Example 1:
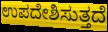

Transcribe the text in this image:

ಉಪದೇಶಿಸುತ್ತದೆ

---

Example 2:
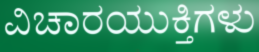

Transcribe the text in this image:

ವಿಚಾರಯುಕ್ತಿಗಳು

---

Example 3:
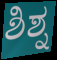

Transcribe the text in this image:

ಶಿಶ್ನ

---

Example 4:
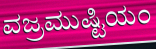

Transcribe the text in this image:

ವಜ್ರಮುಷ್ಟಿಯಂ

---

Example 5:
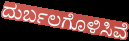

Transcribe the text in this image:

ದುರ್ಬಲಗೊಳಿಸಿವೆ